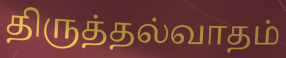
திருத்தல்வாதம்